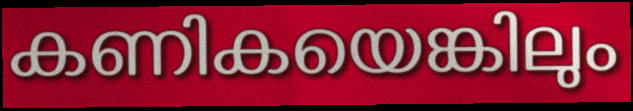
കണികയെങ്കിലും